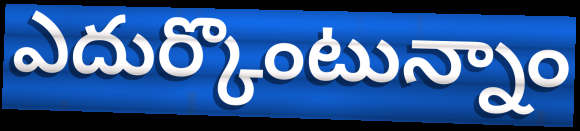
ఎదుర్కొంటున్నాం